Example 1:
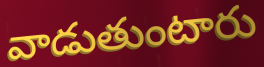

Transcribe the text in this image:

వాడుతుంటారు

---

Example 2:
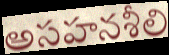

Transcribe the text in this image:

అసహనశీలి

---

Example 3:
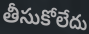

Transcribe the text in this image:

తీసుకోలేదు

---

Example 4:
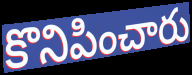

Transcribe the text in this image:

కొనిపించారు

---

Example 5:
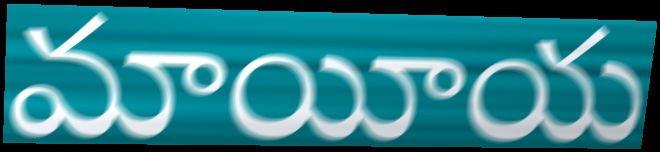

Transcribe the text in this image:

మాయీయ